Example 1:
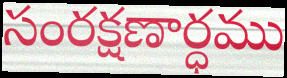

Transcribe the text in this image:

సంరక్షణార్ధము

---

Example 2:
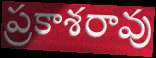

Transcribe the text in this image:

ప్రకాశరావు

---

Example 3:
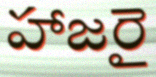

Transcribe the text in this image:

హాజరై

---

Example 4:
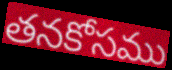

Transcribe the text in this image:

తనకోసము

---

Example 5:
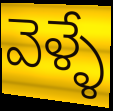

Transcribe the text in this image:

వెళ్ళే